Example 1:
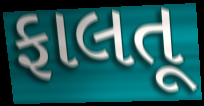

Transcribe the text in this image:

ફાલતૂ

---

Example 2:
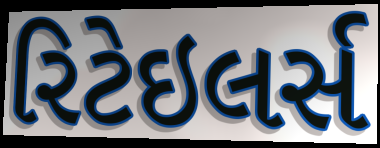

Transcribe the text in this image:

રિટેઇલર્સ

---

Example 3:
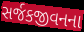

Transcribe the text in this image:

સર્જકજીવનના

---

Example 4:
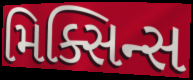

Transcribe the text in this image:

મિક્સિન્સ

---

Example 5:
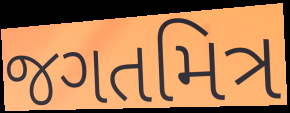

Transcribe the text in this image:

જગતમિત્ર